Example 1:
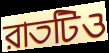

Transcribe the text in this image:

রাতটিও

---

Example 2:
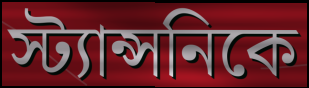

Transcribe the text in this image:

স্ট্যান্সনিকে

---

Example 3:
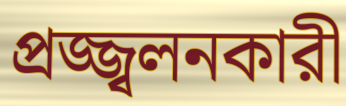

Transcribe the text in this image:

প্রজ্জ্বলনকারী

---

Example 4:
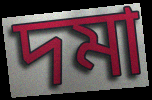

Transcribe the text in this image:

দমা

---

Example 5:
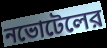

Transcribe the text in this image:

নভোটেলের